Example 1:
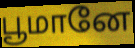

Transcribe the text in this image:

பூமானே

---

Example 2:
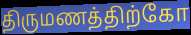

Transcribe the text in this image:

திருமணத்திற்கோ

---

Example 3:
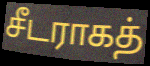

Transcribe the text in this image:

சீடராகத்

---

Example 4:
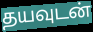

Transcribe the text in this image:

தயவுடன்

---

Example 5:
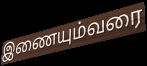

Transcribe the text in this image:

இணையும்வரை